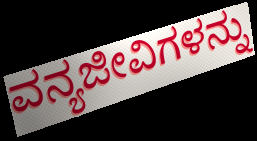
ವನ್ಯಜೀವಿಗಳನ್ನು